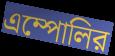
এম্পোলির